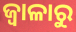
ଜ୍ଵାଳାରୁ